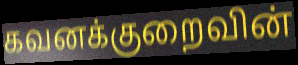
கவனக்குறைவின்